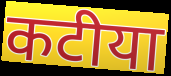
कटीया